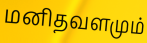
மனிதவளமும்